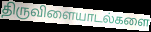
திருவிளையாடல்களை